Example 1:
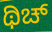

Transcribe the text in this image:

ಥಿಚ್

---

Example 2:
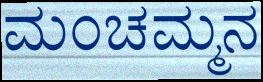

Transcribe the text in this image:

ಮಂಚಮ್ಮನ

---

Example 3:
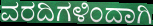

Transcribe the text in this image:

ವರದಿಗಳಿಂದಾಗಿ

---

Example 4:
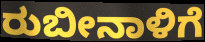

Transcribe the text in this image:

ರುಬೀನಾಳಿಗೆ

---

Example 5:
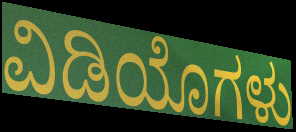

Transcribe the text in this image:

ವಿಡಿಯೊಗಳು